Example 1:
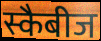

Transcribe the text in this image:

स्कैबीज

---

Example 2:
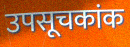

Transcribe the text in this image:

उपसूचकांक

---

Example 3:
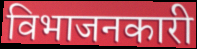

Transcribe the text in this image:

विभाजनकारी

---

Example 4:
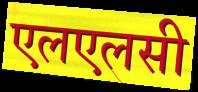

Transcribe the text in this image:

एलएलसी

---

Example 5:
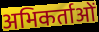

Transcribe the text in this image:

अभिकर्ताओं